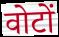
वोटों